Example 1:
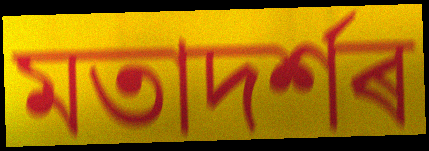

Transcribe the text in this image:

মতাদৰ্শৰ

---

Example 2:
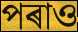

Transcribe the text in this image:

পৰাও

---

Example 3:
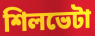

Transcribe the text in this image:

শিলভেটা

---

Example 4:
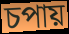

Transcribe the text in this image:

চপায়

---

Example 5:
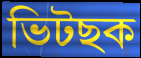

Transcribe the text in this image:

ভিটছক